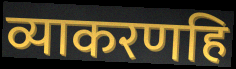
व्याकरणहि